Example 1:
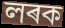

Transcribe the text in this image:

লৰক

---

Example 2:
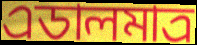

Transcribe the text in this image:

এডালমাত্ৰ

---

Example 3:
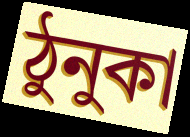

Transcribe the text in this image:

ঠুনুকা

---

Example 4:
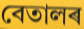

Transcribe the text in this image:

বেতালৰ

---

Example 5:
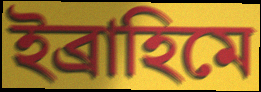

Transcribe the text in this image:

ইব্ৰাহিমে